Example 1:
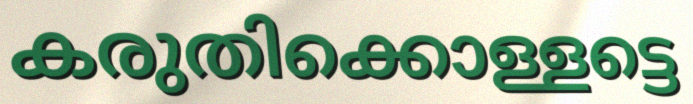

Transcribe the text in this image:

കരുതിക്കൊള്ളട്ടെ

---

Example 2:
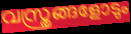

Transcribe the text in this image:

വസ്ത്രങ്ങളോടും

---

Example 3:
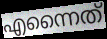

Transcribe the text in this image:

എന്നൈത്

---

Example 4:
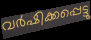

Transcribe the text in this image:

വർഷിക്കപ്പെട്ടു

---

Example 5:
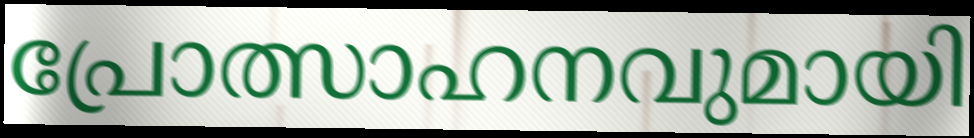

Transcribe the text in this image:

പ്രോത്സാഹനവുമായി